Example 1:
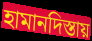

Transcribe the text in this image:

হামানদিস্তায়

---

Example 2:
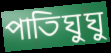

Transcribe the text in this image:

পাতিঘুঘু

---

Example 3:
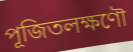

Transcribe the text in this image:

পূজিতলক্ষণৌ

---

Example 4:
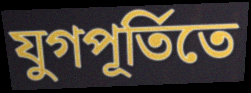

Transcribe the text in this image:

যুগপূর্তিতে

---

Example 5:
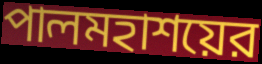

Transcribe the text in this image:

পালমহাশয়ের